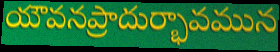
యౌవనప్రాదుర్భావమున